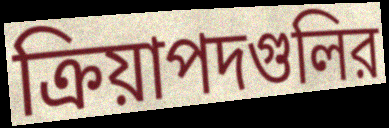
ক্রিয়াপদগুলির